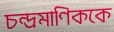
চন্দ্রমাণিককে